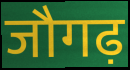
जौगढ़